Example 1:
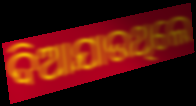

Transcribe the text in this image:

ଦିଆଯାଉଥିଲେ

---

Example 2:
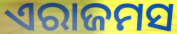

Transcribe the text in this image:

ଏରାଜମସ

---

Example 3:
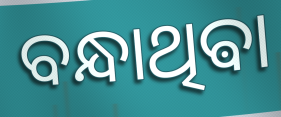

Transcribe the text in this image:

ବନ୍ଧାଥିଵା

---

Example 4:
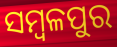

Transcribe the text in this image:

ସମ୍ବଳପୁର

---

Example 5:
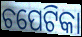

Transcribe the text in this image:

ଚପେଟିକା